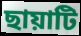
ছায়াটি